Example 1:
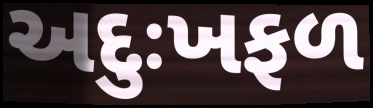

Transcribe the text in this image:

અદુઃખફળ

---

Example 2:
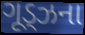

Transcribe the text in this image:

ગૂડ્ઝના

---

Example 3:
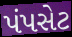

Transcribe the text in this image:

પંપસેટ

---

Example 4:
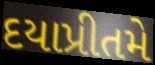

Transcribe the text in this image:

દયાપ્રીતમે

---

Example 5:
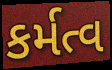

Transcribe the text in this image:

કર્મત્વ